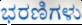
ಭರಣಿಗಳು